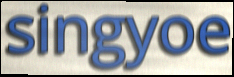
singyoe